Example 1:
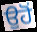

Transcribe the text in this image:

ਉਹੋਂ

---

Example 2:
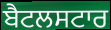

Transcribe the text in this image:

ਬੈਟਲਸਟਾਰ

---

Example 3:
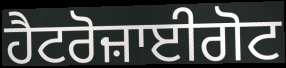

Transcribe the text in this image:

ਹੈਟਰੋਜ਼ਾਈਗੋਟ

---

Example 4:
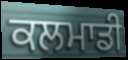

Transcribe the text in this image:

ਕਲਮਾਡੀ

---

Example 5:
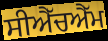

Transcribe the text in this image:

ਸੀਐੱਚਐੱਮ